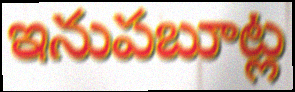
ఇనుపబూట్ల